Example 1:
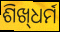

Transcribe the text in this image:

ଶିଖ୍‌ଧର୍ମ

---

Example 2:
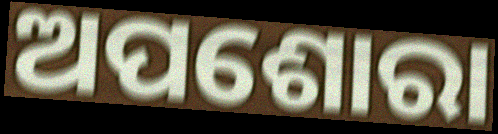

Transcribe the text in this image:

ଅପଶୋରା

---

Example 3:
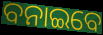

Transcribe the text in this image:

ବନାଇବେ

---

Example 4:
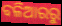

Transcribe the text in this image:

ବଳିଆରରୁ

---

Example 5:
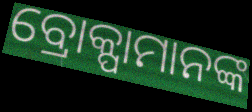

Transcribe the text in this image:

ବ୍ରୋକ୍ପାମାନଙ୍କ